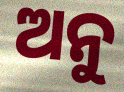
ଅନୁ